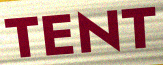
TENT